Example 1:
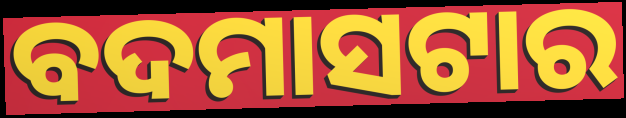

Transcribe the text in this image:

ବଦମାସଟାର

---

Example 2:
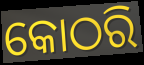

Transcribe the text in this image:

କୋଠରି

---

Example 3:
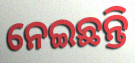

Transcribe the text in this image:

ନେଇଛନ୍ତି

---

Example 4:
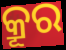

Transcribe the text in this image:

କ୍ରୂର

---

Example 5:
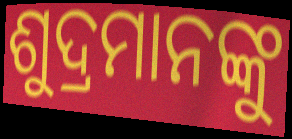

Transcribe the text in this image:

ଶୁଦ୍ରମାନଙ୍କୁ